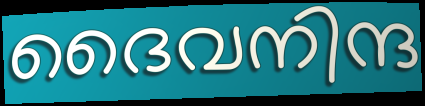
ദൈവനിന്ദ